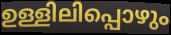
ഉള്ളിലിപ്പൊഴും